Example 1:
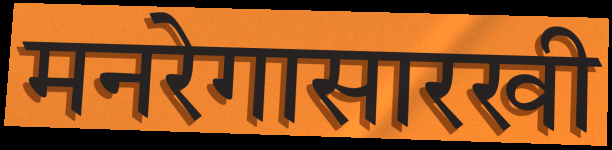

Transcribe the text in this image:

मनरेगासारखी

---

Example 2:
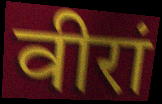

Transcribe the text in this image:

वीरां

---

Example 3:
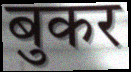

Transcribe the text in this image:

बुकर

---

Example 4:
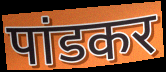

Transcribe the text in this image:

पांडकर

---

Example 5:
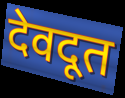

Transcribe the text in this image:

देवदूत